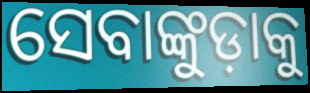
ସେବାଙ୍କୁଡ଼ାକୁ